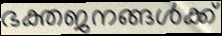
ഭക്തജനങ്ങൾക്ക്